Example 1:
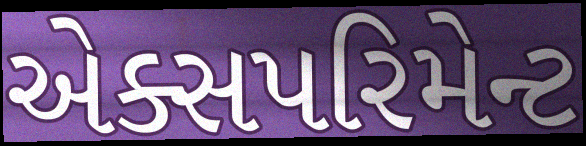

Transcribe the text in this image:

એક્સપરિમેન્ટ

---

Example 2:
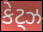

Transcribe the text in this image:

કેટ્ઝ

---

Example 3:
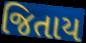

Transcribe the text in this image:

જિતાય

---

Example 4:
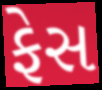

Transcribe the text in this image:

ફેસ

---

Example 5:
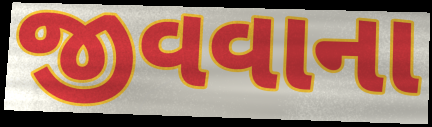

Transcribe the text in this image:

જીવવાના